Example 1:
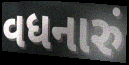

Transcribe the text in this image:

વધનારું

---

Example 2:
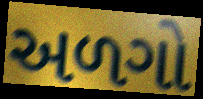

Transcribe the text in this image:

અળગો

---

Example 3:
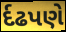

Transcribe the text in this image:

ર્દઢપણે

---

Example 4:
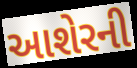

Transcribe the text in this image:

આશેરની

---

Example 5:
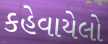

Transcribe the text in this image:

કહેવાયેલો